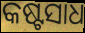
କଷ୍ଟସାଧ